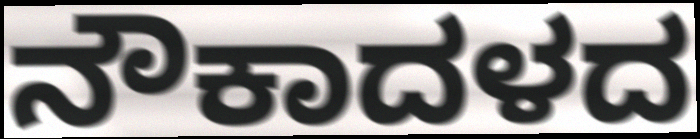
ನೌಕಾದಳದ